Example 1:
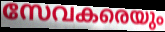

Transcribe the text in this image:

സേവകരെയും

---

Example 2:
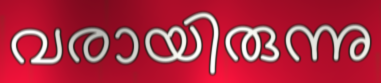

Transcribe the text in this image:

വരായിരുന്നു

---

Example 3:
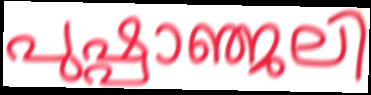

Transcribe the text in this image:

പുഷ്പാഞ്ജലി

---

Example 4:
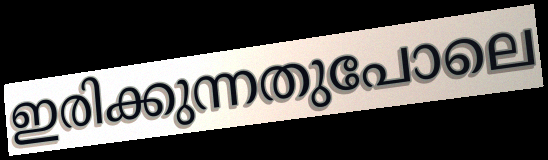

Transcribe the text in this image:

ഇരിക്കുന്നതുപോലെ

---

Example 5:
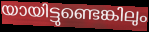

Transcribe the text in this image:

യായിട്ടുണ്ടെങ്കിലും